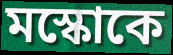
মস্কোকে